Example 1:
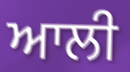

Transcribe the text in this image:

ਆਲੀ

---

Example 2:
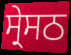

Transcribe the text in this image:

ਸ੍ਰੇਸਠ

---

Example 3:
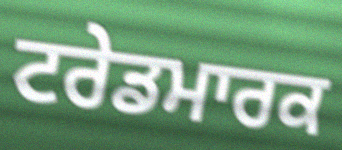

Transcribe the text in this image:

ਟਰੇਡਮਾਰਕ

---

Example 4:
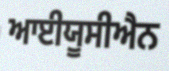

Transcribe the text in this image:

ਆਈਯੂਸੀਐਨ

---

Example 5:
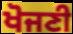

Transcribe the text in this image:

ਖੋਜਣੀ